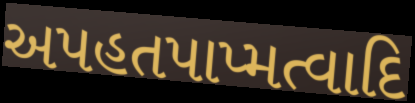
અપહતપાપ્મત્વાદિ